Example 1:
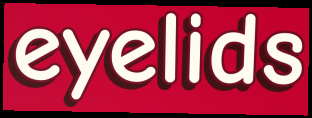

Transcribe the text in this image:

eyelids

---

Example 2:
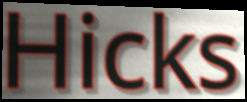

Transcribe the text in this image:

Hicks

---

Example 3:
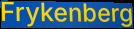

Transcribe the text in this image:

Frykenberg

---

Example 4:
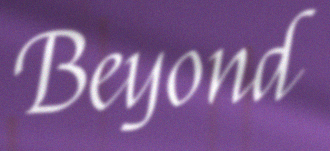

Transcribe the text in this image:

Beyond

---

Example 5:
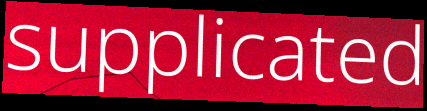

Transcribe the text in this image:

supplicated